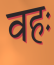
वहः